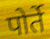
पोर्ते